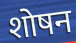
शोषन